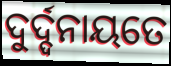
ଦୁର୍ଦ୍ଦନାୟତେ